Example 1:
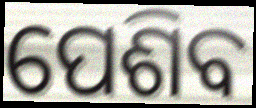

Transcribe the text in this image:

ପେଶିବ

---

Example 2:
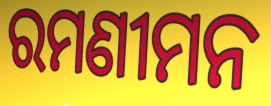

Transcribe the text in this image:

ରମଣୀମନ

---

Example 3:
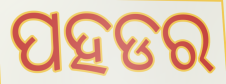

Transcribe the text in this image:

ପହଡର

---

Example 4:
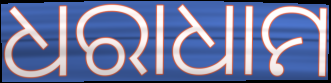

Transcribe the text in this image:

ଧରାଧାମ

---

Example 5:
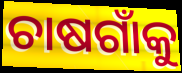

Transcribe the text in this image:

ଚାଷଗାଁକୁ